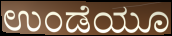
ಉಂಡೆಯೂ